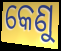
କେଣୁ